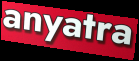
anyatra